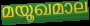
മയൂഖമാല